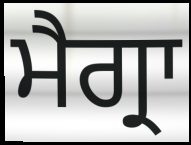
ਮੈਗ੍ਰਾ